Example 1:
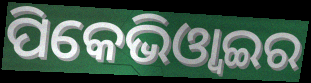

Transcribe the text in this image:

ପିକେଭିଓ୍ବାଇର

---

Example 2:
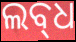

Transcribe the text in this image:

ଲବ୍‌ଧ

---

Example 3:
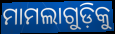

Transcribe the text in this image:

ମାମଲାଗୁଡ଼ିକୁ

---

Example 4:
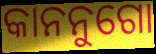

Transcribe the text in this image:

କାନନୁଗୋ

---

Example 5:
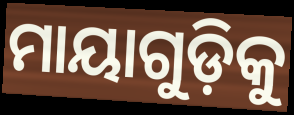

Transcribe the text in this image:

ମାୟାଗୁଡ଼ିକୁ